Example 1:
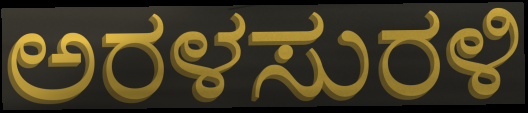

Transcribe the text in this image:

ಅರಳಸುರಳಿ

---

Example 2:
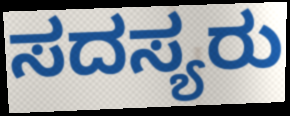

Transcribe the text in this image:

ಸದಸ್ಯರು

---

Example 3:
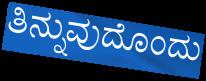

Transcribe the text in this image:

ತಿನ್ನುವುದೊಂದು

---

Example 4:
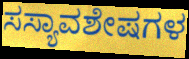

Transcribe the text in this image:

ಸಸ್ಯಾವಶೇಷಗಳ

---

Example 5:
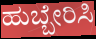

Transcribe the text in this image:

ಹುಬ್ಬೇರಿಸಿ